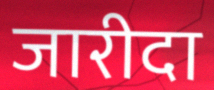
जारीदा